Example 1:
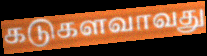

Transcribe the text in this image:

கடுகளவாவது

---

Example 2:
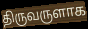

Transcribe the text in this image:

திருவருளாக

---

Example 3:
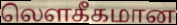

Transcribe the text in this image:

லெளகீகமான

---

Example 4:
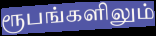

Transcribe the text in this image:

ரூபங்களிலும்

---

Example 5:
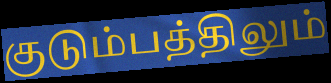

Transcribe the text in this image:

குடும்பத்திலும்